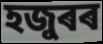
হজুৰৰ